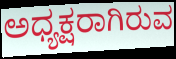
ಅಧ್ಯಕ್ಷರಾಗಿರುವ